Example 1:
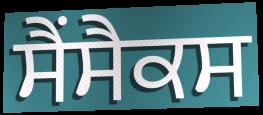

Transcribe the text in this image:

ਸੈਂਸੈਕਸ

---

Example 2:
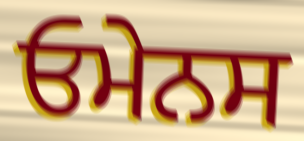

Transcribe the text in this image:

ਓਮੇਨਸ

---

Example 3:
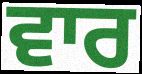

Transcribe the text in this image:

ਵਾਰ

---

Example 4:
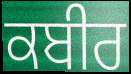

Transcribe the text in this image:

ਕਬੀਰ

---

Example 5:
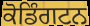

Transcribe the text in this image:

ਕੋਡਿੰਗਟਨ